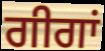
ਗੀਗਾਂ